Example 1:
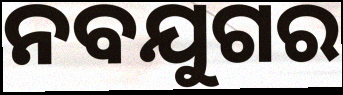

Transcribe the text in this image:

ନବଯୁଗର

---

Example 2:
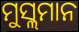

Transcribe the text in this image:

ମୁସ୍ଲମାନ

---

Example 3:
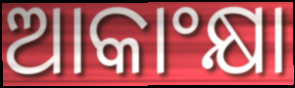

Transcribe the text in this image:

ଆକାଂକ୍ଷା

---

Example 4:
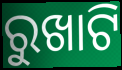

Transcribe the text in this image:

ରୁଖାଟି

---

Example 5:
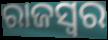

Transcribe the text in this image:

ରାଜସ୍ବର